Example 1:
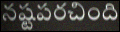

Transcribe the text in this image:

నష్టపరచింది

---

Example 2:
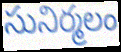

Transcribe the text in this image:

సునిర్మలం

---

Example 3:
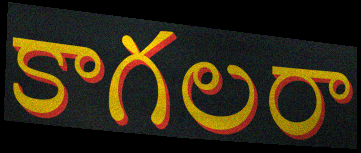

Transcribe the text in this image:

కాగలరా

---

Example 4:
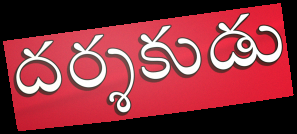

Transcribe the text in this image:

దర్శకుడు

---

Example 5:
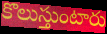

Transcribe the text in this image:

కొలుస్తుంటారు